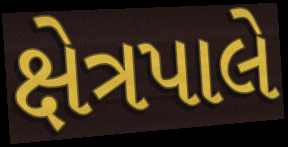
ક્ષેત્રપાલે